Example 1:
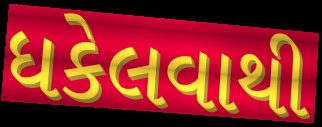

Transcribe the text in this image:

ધકેલવાથી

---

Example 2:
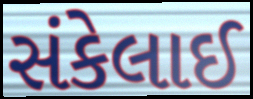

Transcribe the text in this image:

સંકેલાઈ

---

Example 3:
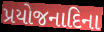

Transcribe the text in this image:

પ્રયોજનાદિના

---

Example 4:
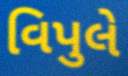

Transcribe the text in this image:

વિપુલે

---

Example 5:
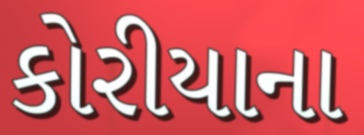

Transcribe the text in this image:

કોરીયાના